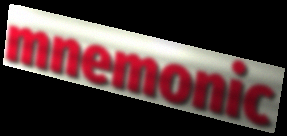
mnemonic